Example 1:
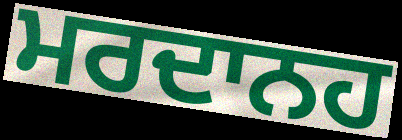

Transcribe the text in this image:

ਮਰਦਾਨਹ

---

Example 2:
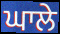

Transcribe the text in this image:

ਘਾਲੇ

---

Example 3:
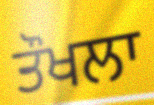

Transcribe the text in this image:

ਤੌਖਲਾ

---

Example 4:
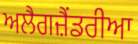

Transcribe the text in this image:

ਅਲੈਗਜ਼ੈਂਡਰੀਆ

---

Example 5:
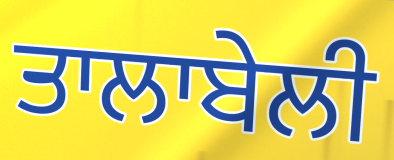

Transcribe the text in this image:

ਤਾਲਾਬੇਲੀ